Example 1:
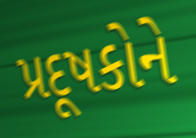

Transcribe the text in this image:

પ્રદૂષકોને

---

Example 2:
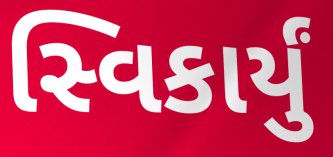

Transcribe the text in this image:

સ્વિકાર્યું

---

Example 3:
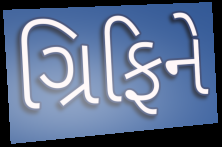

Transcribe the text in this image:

ગ્રિફિને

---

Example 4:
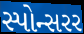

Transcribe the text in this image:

સ્પોન્સરર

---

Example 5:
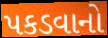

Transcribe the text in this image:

પકડવાનો